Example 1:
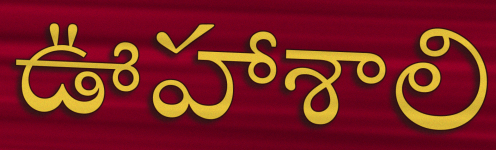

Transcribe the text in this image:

ఊహాశాలి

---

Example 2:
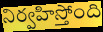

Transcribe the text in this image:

నిర్వహిస్తోంది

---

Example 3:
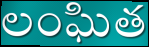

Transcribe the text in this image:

లంఘిత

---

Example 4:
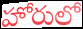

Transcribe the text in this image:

హోరులో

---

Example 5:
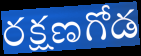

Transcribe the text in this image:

రక్షణగోడ